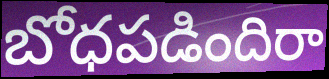
బోధపడిందిరా